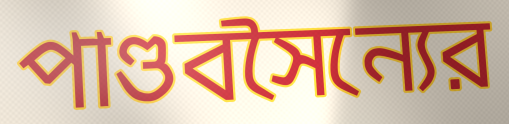
পাণ্ডবসৈন্যের